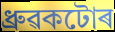
ধ্ৰুৱকটোৰ